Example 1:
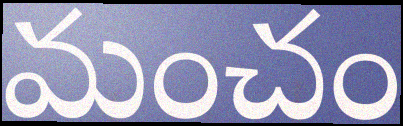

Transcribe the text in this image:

మంచం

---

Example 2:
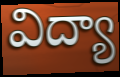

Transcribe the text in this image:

విద్యా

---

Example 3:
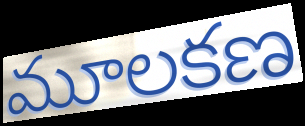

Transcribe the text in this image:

మూలకణ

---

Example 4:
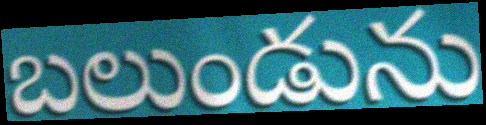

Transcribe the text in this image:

బలుండును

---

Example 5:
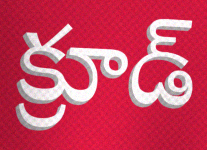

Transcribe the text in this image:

క్రూడ్